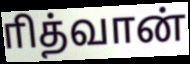
ரித்வான்